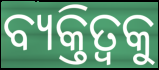
ବ୍ୟକ୍ତିତ୍ୱକୁ